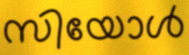
സിയോൾ